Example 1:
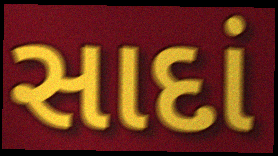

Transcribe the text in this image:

સાદાં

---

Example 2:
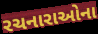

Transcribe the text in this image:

રચનારાઓના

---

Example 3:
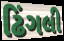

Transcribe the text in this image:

ઢિંગલી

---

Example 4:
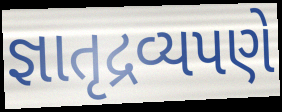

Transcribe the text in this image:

જ્ઞાતૃદ્રવ્યપણે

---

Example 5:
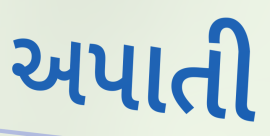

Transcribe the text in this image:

અપાતી